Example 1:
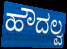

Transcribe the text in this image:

ಹೌದಲ್ವ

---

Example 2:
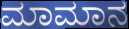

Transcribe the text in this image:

ಮಾಮಾನ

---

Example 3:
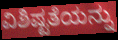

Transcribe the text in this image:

ವಿಶಿಷ್ಟತೆಯನ್ನು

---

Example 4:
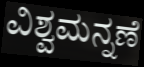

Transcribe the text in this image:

ವಿಶ್ವಮನ್ನಣೆ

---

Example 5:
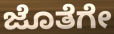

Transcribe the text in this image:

ಜೊತೆಗೇ